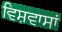
ਵਿਸ਼ਵਾਸਾਂ